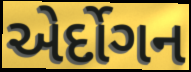
એર્દોગન